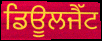
ਡਿਊਲਜੈੱਟ